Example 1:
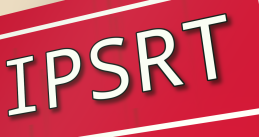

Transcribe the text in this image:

IPSRT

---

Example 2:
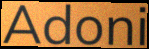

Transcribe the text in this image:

Adoni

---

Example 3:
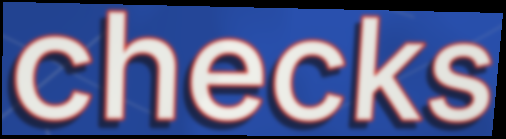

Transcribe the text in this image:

checks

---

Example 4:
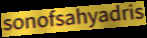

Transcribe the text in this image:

sonofsahyadris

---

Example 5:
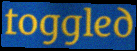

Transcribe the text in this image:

toggled